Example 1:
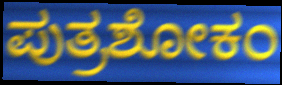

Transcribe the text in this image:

ಪುತ್ರಶೋಕಂ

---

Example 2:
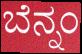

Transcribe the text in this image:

ಬೆನ್ನಂ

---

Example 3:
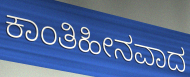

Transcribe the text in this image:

ಕಾಂತಿಹೀನವಾದ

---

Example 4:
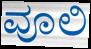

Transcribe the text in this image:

ವೂಲಿ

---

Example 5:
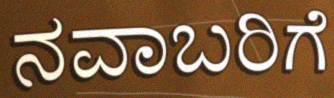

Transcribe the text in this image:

ನವಾಬರಿಗೆ